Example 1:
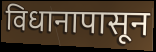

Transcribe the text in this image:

विधानापासून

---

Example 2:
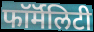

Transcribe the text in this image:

फॉर्मॅलिटी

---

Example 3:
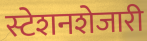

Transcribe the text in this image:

स्टेशनशेजारी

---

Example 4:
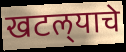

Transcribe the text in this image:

खटल्याचे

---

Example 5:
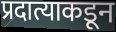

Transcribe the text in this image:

प्रदात्याकडून